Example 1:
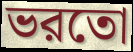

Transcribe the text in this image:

ভরতো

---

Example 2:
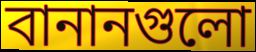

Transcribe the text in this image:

বানানগুলো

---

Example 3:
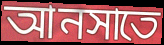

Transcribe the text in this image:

আনসাতে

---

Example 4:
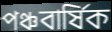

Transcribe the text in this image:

পঞ্চবার্ষিক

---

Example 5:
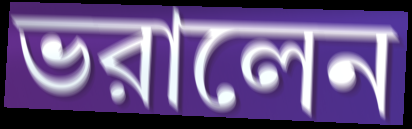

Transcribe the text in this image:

ভরালেন